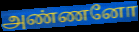
அண்ணனோ